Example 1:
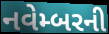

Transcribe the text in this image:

નવેમ્બરની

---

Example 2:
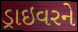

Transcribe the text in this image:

ડ્રાઇવરને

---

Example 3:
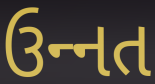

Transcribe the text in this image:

ઉન્‍નત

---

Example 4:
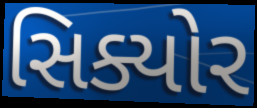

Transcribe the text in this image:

સિક્યોર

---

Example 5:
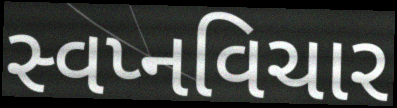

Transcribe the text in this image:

સ્વપ્નવિચાર